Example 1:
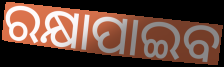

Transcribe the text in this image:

ରକ୍ଷାପାଇବ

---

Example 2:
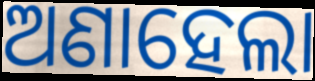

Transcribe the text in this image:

ଅଣାହେଲା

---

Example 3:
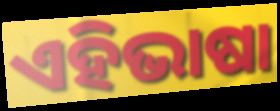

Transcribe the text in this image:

ଏହିଭାଷା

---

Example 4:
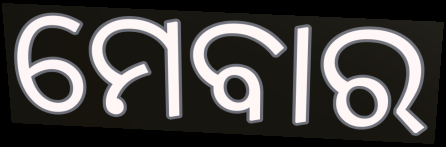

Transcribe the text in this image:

ମେବାର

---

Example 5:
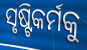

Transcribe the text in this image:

ସୃଷ୍ଟିକର୍ମକୁ